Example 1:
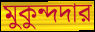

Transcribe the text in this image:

মুকুন্দদার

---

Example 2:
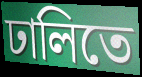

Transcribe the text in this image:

ঢালিতে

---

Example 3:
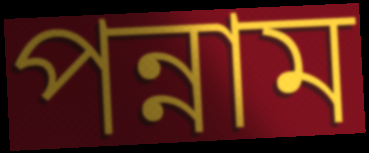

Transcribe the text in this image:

পন্নাম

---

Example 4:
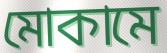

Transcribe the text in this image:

মোকামে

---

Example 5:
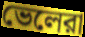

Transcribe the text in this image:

ভেলেরা